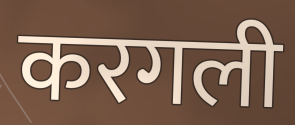
करगली